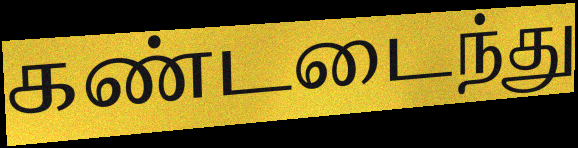
கண்டடைந்து